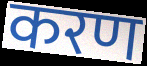
करण